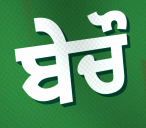
ਬੇਚੌ